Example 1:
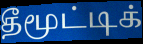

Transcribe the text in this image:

தீமூட்டிக்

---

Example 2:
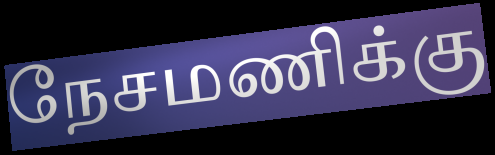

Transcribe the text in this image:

நேசமணிக்கு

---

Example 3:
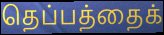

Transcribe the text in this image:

தெப்பத்தைக்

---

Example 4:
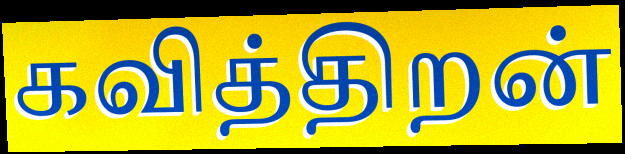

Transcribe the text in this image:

கவித்திறன்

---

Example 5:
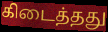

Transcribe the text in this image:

கிடைத்தது